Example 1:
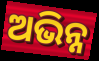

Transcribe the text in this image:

ଅଭିନ୍ନ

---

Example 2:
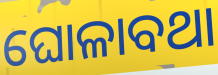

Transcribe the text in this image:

ଘୋଳାବଥା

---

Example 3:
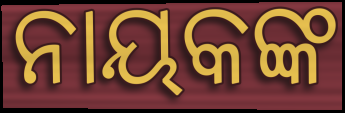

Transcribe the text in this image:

ନାୟକଙ୍କ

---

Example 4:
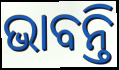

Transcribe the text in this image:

ଭାବନ୍ତି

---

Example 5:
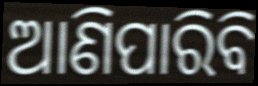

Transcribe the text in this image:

ଆଣିପାରିବି